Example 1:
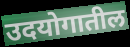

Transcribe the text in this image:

उदयोगातील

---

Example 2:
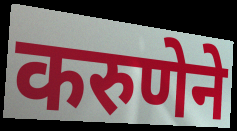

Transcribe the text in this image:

करुणेने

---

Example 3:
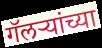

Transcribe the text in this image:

गॅलर्‍यांच्या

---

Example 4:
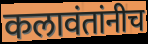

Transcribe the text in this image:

कलावंतांनीच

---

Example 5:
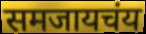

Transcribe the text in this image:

समजायचंय